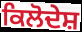
ਕਿਲੋਦੇਸ਼